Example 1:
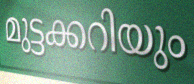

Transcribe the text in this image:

മുട്ടക്കറിയും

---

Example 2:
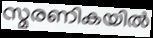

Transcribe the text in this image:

സ്മരണികയിൽ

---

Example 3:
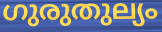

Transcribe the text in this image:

ഗുരുതുല്യം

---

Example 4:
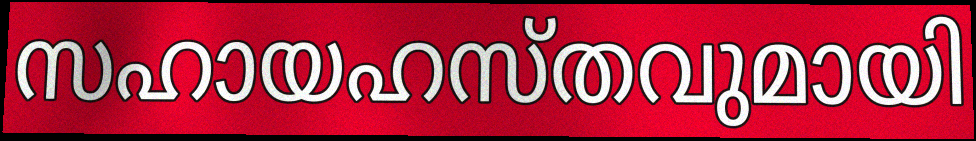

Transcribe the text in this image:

സഹായഹസ്തവുമായി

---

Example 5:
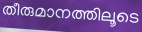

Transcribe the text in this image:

തീരുമാനത്തിലൂടെ